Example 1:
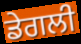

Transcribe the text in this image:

ਡੇਗਲੀ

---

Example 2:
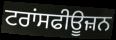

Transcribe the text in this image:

ਟਰਾਂਸਫੀਊਜ਼ਨ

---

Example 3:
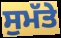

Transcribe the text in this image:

ਸੁਮੱਤੇ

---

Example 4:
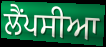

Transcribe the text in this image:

ਲੈਂਪਸੀਆ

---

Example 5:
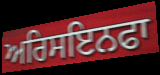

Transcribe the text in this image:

ਅਰਿਸਇਨਫਾ